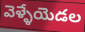
వెళ్ళేయెడల